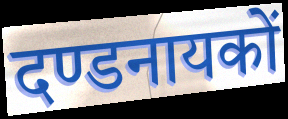
दण्डनायकों